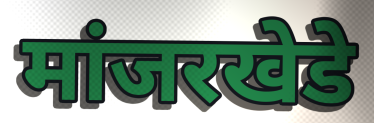
मांजरखेडे